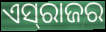
ଏସ୍‍ରାଜର